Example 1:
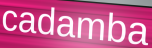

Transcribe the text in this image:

cadamba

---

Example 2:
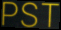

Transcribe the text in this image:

PST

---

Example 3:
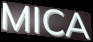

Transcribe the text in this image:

MICA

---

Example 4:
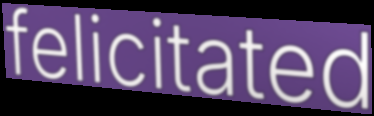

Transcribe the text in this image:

felicitated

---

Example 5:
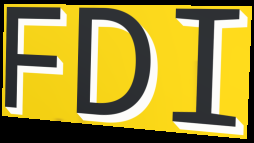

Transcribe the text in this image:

FDI